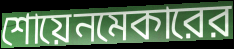
শোয়েনমেকারের